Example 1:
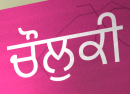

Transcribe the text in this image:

ਚੌਲੁਕੀ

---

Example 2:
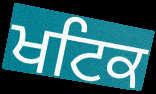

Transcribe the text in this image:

ਖਟਿਕ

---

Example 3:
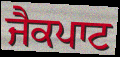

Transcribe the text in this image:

ਜੈਕਪਾਟ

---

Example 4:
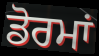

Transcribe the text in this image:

ਡੋਰਮਾਂ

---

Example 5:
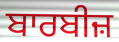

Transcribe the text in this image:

ਬਾਰਬੀਜ਼